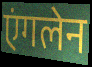
एंगलेन